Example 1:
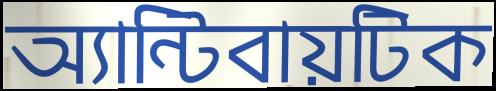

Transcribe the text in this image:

অ্যান্টিবায়টিক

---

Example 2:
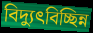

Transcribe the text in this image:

বিদ্যুৎবিচ্ছিন্ন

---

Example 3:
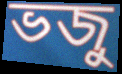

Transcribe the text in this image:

ভজু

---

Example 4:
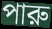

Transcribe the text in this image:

পারু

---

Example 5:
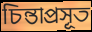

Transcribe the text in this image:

চিন্তাপ্রসূত